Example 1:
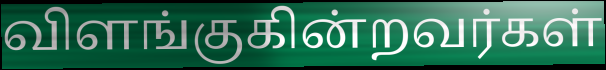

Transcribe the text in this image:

விளங்குகின்றவர்கள்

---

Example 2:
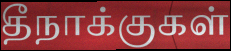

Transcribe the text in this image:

தீநாக்குகள்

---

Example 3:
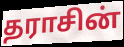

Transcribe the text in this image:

தராசின்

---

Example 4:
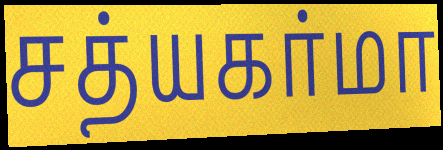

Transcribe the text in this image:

சத்யகர்மா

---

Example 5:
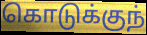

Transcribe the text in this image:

கொடுக்குந்